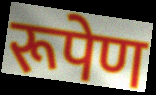
रूपेण